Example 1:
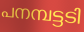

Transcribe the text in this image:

പനമ്പട്ടടി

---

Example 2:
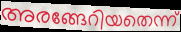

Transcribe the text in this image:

അരങ്ങേറിയതെന്ന്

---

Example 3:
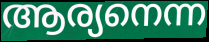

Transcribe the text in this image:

ആര്യനെന്ന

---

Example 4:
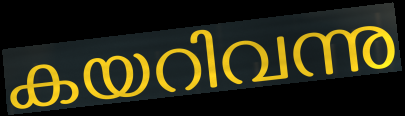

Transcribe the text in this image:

കയറിവന്നു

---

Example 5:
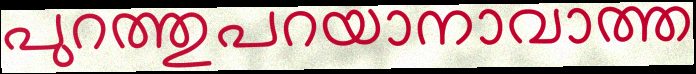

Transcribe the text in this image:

പുറത്തുപറയാനാവാത്ത